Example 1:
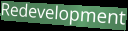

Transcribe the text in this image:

Redevelopment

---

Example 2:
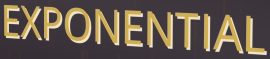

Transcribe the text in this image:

EXPONENTIAL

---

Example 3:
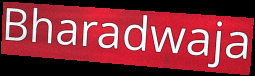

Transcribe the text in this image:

Bharadwaja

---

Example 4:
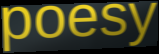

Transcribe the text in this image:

poesy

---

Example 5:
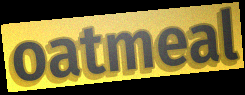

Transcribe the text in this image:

oatmeal